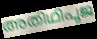
അതിഥിപൂജ